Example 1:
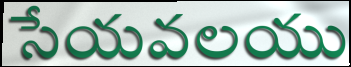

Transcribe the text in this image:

సేయవలయు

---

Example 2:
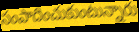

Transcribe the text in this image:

సంపాదించుకుంటున్నారు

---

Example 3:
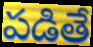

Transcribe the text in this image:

పడితే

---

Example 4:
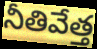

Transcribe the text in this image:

నీతివేత్త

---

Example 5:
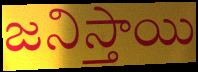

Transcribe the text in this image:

జనిస్తాయి